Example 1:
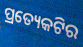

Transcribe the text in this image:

ପ୍ରତ୍ୟେକଟିର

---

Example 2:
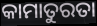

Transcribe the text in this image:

କାମାତୁରତା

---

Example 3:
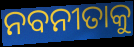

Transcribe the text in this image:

ନବନୀତାକୁ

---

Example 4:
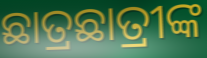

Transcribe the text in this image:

ଛାତ୍ରଛାତ୍ରୀଙ୍କ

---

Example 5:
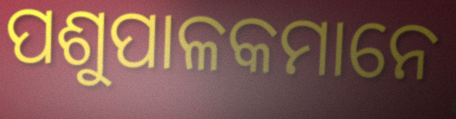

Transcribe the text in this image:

ପଶୁପାଳକମାନେ